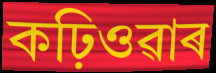
কঢ়িওৱাৰ